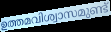
ഉത്തമവിശ്വാസമുണ്ട്